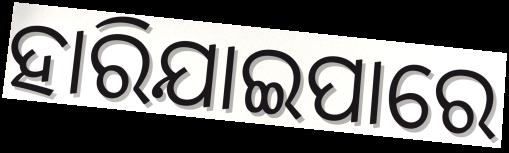
ହାରିଯାଇପାରେ